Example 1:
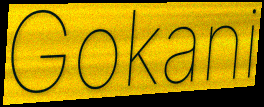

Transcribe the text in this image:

Gokani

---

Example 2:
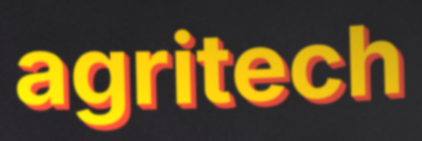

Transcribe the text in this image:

agritech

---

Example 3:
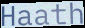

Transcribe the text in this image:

Haath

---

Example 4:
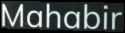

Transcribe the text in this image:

Mahabir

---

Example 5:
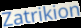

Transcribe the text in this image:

Zatrikion